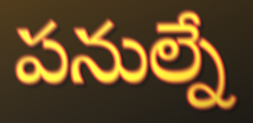
పనుల్నే